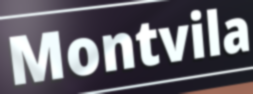
Montvila